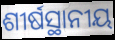
ଶୀର୍ଷସ୍ଥାନୀୟ